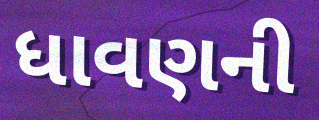
ધાવણની